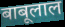
बाबूलाल